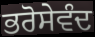
ਭਰੋਸੇਵੰਦ